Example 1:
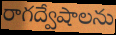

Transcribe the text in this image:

రాగద్వేషాలను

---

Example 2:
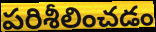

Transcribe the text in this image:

పరిశీలించడం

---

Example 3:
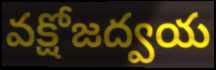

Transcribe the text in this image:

వక్షోజద్వయ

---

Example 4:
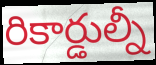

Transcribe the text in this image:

రికార్డుల్నీ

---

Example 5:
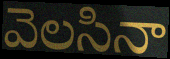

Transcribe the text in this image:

వెలసినా